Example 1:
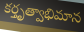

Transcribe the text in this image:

కర్తృత్వాభిమాన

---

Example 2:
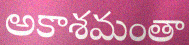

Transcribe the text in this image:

అకాశమంతా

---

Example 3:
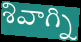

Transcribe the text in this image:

శివాగ్ని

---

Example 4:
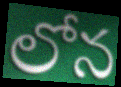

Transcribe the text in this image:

లోన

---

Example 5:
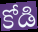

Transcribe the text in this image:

కోడి